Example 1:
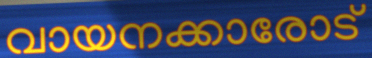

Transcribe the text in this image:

വായനക്കാരോട്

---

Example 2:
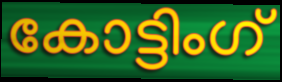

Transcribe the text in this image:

കോട്ടിംഗ്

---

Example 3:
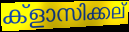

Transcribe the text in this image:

ക്ളാസിക്കല്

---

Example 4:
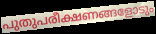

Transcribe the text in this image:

പുതുപരീക്ഷണങ്ങളോടും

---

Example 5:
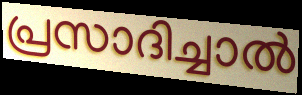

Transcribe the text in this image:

പ്രസാദിച്ചാൽ